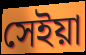
সেইয়া